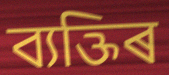
ব্যক্তিৰ